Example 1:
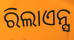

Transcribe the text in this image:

ରିଲାଏନ୍ସ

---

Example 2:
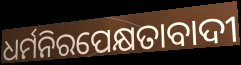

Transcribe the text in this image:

ଧର୍ମନିରପେକ୍ଷତାବାଦୀ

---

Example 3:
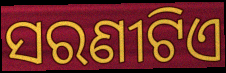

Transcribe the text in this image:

ସରଣୀଟିଏ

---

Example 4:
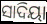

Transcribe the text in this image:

ସାଦିୟା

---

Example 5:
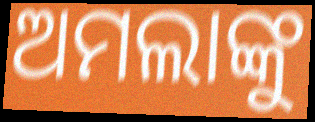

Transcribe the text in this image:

ଅମଲାଙ୍କୁ